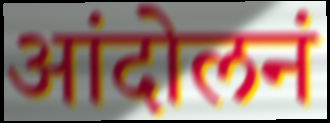
आंदोलनं